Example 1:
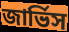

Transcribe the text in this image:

জার্ভিস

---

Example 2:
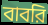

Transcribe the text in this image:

বাবরি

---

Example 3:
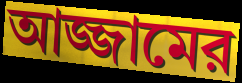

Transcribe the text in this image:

আজ্জামের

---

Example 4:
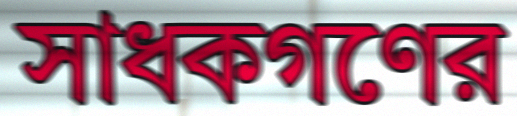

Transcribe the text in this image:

সাধকগণের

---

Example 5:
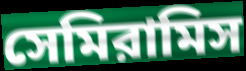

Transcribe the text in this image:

সেমিরামিস